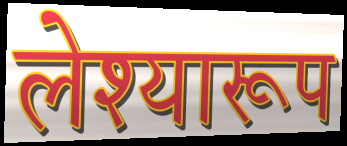
लेश्यारूप